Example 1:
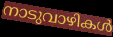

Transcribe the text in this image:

നാടുവാഴികൾ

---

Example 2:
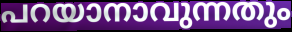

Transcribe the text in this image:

പറയാനാവുന്നതും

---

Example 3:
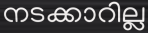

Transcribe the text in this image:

നടക്കാറില്ല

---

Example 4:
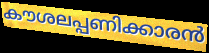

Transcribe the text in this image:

കൗശലപ്പണിക്കാരൻ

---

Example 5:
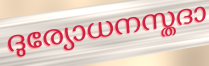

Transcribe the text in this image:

ദുര്യോധനസ്തദാ